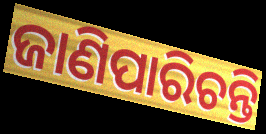
ଜାଣିପାରିଚନ୍ତି